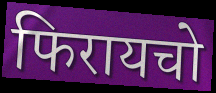
फिरायचो